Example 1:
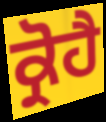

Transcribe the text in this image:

ਕ੍ਰੋਹੈ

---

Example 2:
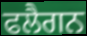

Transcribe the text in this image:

ਫਲੈਗਨ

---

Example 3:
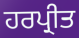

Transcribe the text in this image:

ਹਰਪ੍ਰੀਤ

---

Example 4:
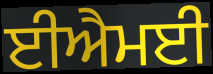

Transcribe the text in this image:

ਈਐਮਈ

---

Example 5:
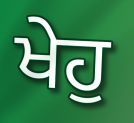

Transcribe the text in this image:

ਖੇਹੁ